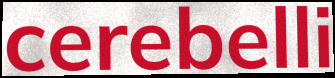
cerebelli